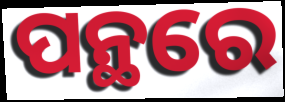
ପନ୍ଥରେ